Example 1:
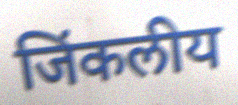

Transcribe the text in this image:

जिंकलीय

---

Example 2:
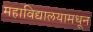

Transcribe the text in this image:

महाविद्यालयामधून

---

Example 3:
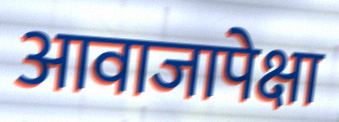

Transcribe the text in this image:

आवाजापेक्षा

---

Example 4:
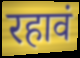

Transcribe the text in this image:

रहावं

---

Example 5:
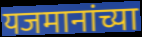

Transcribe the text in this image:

यजमानांच्या